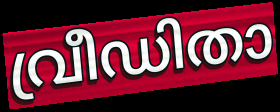
വ്രീഡിതാ